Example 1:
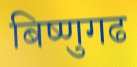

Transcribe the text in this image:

बिष्णुगढ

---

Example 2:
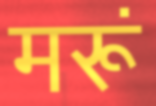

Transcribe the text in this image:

मरूं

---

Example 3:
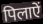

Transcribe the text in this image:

पिलाऐं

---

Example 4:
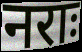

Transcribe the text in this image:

नराः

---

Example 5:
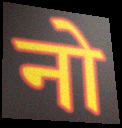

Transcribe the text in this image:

नो